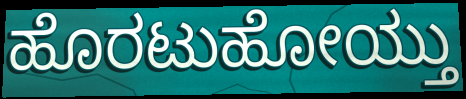
ಹೊರಟುಹೋಯ್ತು